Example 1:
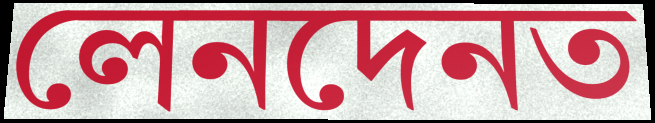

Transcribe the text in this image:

লেনদেনত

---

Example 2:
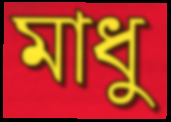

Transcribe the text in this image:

মাধু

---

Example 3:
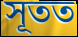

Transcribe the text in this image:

সূতত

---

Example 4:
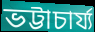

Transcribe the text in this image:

ভট্টাচাৰ্য্য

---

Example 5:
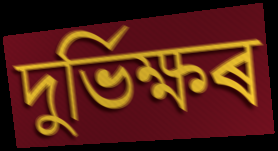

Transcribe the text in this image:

দুৰ্ভিক্ষৰ